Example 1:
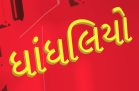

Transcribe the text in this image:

ધાંધલિયો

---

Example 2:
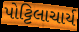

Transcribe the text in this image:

પોટ્ટિલાચાર્ય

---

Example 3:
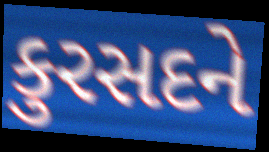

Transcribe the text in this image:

કુરસદને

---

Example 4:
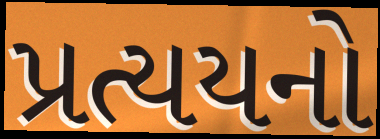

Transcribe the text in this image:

પ્રત્યયનો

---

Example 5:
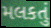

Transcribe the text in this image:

મલકતું